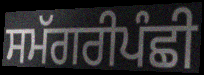
ਸਮੱਗਰੀਪੰਛੀ